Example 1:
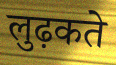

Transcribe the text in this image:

लुढ़कते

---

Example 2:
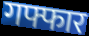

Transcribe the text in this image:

गफ्फार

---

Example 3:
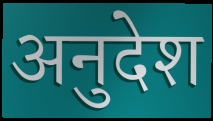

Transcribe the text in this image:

अनुदेश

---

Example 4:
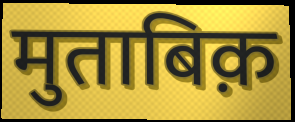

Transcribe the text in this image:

मुताबिक़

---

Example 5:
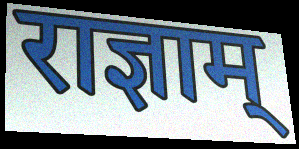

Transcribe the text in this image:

राज्ञाम्